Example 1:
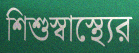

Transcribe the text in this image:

শিশুস্বাস্থ্যের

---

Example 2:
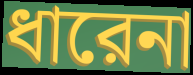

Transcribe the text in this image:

ধারেনা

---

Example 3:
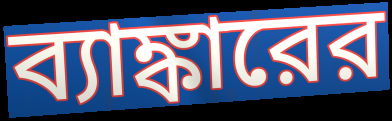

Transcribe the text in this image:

ব্যাঙ্কারের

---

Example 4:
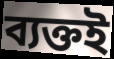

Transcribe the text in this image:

ব্যক্তই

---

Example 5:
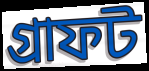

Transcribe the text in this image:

গ্রাফট